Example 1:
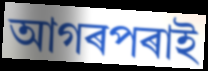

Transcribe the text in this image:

আগৰপৰাই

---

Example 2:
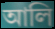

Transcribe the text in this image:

আলি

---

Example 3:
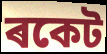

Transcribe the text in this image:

ৰকেট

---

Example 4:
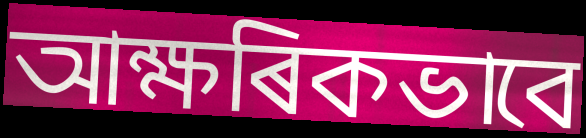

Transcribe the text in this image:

আক্ষৰিকভাবে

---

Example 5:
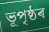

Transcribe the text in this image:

ভূপৃষ্ঠৰ